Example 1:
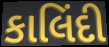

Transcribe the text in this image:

કાલિંદી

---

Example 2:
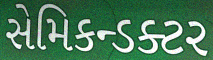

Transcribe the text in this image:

સેમિકન્ડક્ટર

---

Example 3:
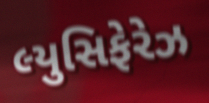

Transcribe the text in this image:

લ્યુસિફેરેઝ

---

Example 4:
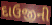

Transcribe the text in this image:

દાઉજીની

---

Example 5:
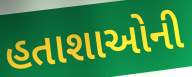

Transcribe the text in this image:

હતાશાઓની